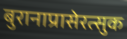
बुरानाप्रासेरत्सुक